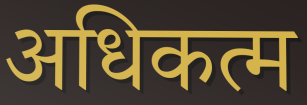
अधिकत्म